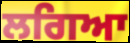
ਲਗਿਆ